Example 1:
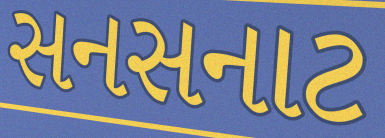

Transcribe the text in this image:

સનસનાટ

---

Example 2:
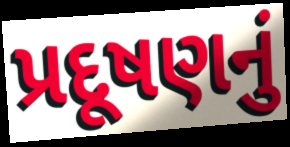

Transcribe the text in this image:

પ્રદૂષણનું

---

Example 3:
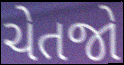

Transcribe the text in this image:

ચેતજો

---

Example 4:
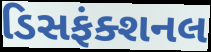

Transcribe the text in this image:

ડિસફંક્શનલ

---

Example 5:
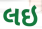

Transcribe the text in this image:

લઇ